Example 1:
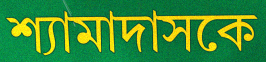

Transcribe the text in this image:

শ্যামাদাসকে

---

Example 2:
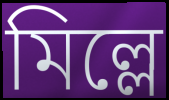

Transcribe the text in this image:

মিল্লে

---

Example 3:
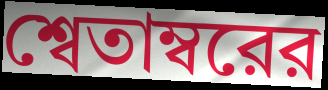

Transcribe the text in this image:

শ্বেতাম্বরের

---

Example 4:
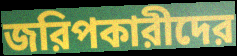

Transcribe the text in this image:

জরিপকারীদের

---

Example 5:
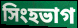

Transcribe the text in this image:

সিংহভাগ